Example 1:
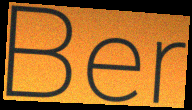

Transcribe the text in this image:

Ber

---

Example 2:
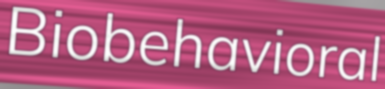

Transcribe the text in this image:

Biobehavioral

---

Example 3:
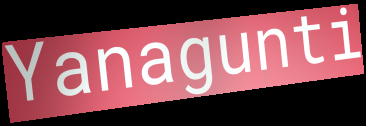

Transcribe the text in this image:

Yanagunti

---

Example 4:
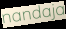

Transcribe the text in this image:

nandaja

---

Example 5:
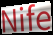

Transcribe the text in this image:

Nife